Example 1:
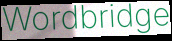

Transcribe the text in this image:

Wordbridge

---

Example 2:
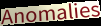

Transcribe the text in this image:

Anomalies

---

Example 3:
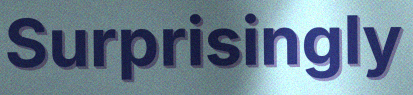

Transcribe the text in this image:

Surprisingly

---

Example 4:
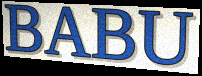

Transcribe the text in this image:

BABU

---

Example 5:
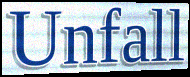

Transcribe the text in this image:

Unfall